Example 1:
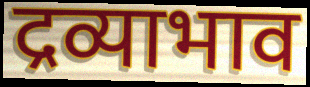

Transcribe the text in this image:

द्रव्याभाव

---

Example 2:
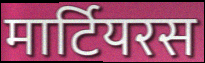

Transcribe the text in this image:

मार्टियरस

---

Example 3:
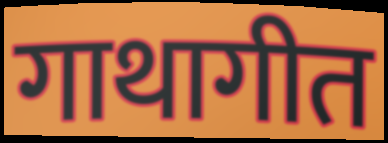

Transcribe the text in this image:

गाथागीत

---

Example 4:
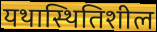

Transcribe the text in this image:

यथास्थितिशील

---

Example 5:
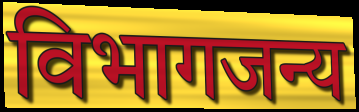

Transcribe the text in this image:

विभागजन्य